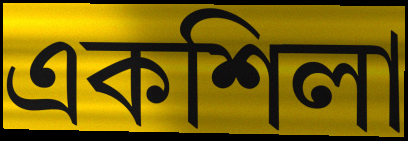
একশিলা